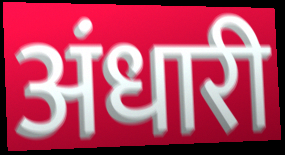
अंधारी